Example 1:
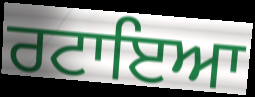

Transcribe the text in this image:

ਰਟਾਇਆ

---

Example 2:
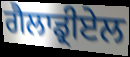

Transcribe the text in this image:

ਗੈਲਾਡ੍ਰੀਏਲ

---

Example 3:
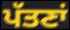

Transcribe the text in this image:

ਪੱਤਣਾਂ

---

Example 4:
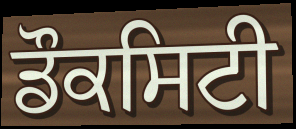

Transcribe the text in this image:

ਡੌਕਸਿਟੀ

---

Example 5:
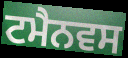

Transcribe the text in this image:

ਟਮੈਨਵਸ